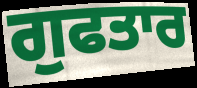
ਗੁਫਤਾਰ